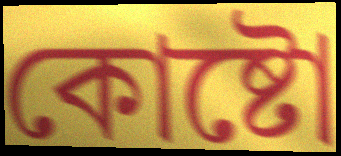
কোষ্টো